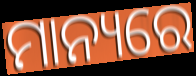
ମାନ୍ୟରେ